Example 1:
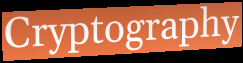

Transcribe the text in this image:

Cryptography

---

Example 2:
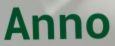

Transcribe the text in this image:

Anno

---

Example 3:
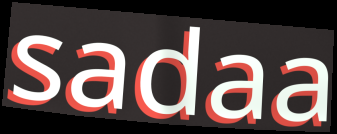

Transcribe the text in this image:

sadaa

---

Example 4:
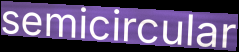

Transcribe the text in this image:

semicircular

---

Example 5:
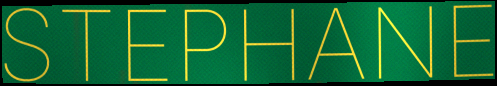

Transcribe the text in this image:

STEPHANE